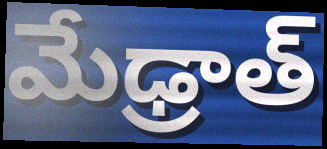
మేఢ్రాత్